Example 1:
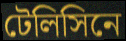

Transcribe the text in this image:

টেলিসিনে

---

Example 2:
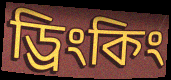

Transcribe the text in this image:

ড্রিংকিং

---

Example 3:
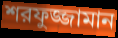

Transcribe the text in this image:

শরফুজ্জামান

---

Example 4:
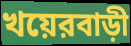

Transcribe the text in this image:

খয়েরবাড়ী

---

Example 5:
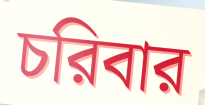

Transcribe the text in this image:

চরিবার